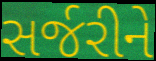
સર્જરીને